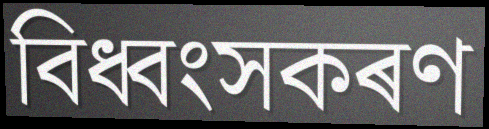
বিধ্বংসকৰণ